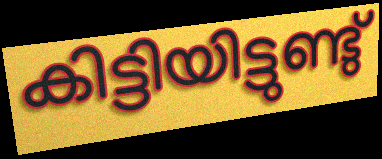
കിട്ടിയിട്ടുണ്ടു്